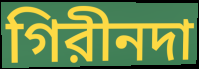
গিরীনদা